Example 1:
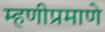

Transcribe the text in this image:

म्हणीप्रमाणे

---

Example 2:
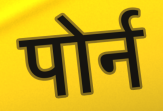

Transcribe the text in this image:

पोर्न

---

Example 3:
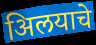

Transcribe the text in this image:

अिलयाचे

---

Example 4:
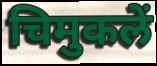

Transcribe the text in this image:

चिमुकलें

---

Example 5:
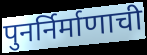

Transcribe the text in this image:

पुनर्निर्माणाची